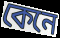
কেনে